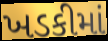
ખડકીમાં